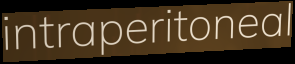
intraperitoneal